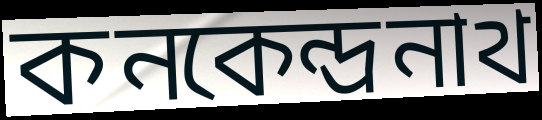
কনকেন্দ্রনাথ